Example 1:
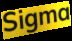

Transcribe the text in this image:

Sigma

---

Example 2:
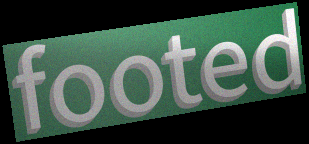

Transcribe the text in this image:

footed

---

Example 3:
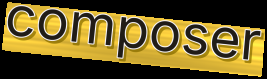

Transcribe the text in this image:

composer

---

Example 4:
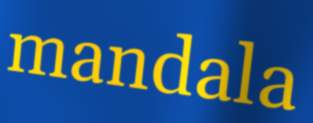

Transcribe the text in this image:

mandala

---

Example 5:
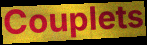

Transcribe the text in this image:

Couplets